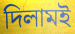
দিলামই